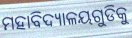
ମହାବିଦ୍ୟାଳୟଗୁଡିକୁ